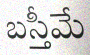
బస్తీమే